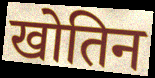
खोतिन